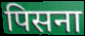
पिसना